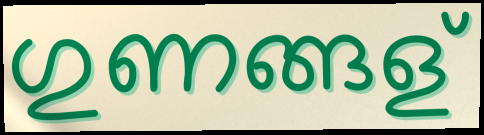
ഗുണങ്ങള്